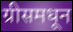
ग्रीसमधून